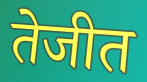
तेजीत